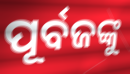
ପୂର୍ବଜଙ୍କୁ